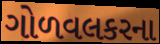
ગોળવલકરના